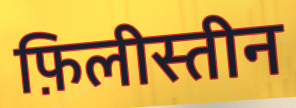
फ़िलीस्तीन